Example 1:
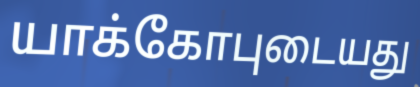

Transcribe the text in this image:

யாக்கோபுடையது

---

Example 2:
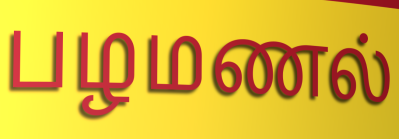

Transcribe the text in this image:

பழமணல்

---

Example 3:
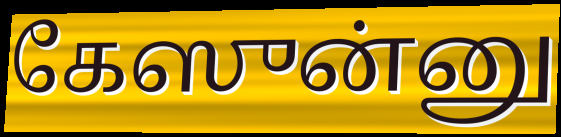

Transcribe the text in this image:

கேஸுன்னு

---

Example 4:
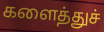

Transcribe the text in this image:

களைத்துச்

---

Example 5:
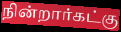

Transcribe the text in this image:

நின்றார்கட்கு